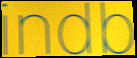
indb